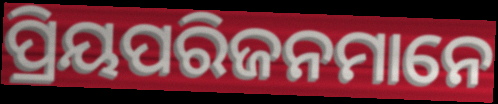
ପ୍ରିୟପରିଜନମାନେ